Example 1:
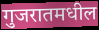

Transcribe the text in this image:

गुजरातमधील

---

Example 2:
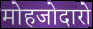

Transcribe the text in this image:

मोहजोदारो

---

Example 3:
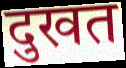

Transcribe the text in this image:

दुखत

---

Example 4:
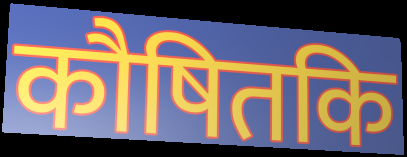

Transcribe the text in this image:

कौषितकि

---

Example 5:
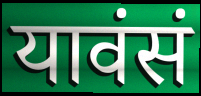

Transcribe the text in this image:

यावंसं